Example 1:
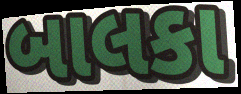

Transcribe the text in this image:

બાલકા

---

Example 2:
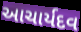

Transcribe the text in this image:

આચાર્યદવ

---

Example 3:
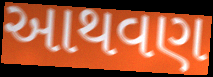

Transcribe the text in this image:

આથવણ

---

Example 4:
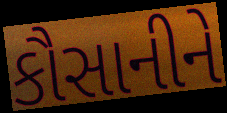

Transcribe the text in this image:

કૌસાનીને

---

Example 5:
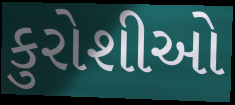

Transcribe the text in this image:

કુરોશીઓ